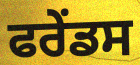
ਫਰੇਂਡਸ